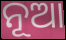
ନୂଆ